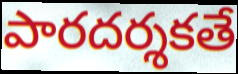
పారదర్శకతే